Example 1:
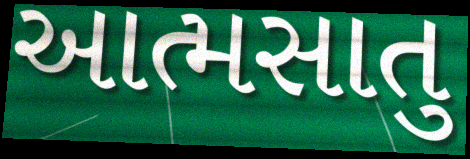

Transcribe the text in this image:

આત્મસાતુ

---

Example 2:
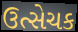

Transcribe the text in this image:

ઉત્સેચક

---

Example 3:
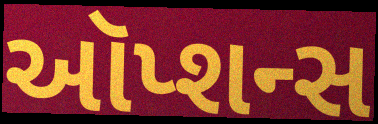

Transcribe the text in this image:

ઑપ્શન્સ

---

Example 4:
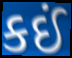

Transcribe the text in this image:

કઈં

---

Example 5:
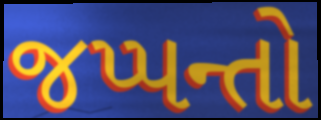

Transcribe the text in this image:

જપ્પન્તો